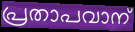
പ്രതാപവാന്